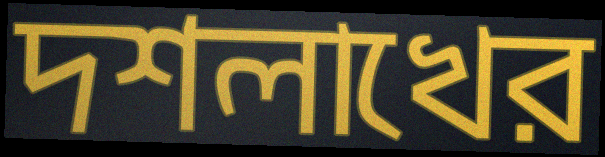
দশলাখের